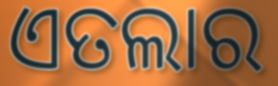
ଏତଲାର